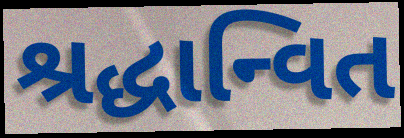
શ્રદ્ધાન્વિત